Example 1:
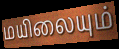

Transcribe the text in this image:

மயிலையும்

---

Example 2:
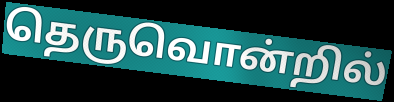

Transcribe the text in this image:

தெருவொன்றில்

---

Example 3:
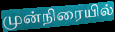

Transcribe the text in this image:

முன்நிரையில்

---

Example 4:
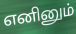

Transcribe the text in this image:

எனினும்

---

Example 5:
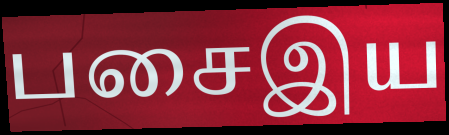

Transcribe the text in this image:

பசைஇய